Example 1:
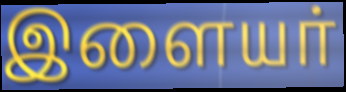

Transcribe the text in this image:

இளையர்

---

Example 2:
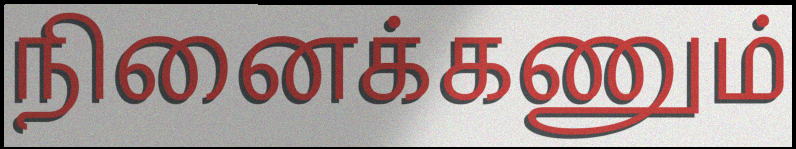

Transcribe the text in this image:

நினைக்கணும்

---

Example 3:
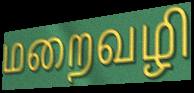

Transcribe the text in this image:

மறைவழி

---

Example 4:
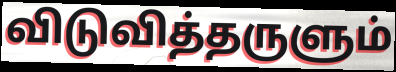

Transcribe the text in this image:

விடுவித்தருளும்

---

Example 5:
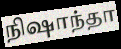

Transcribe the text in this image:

நிஷாந்தா